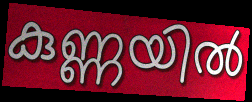
കുണ്ണയിൽ